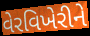
વેરવિખેરીને